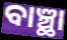
ବାଞ୍ଛା